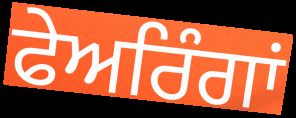
ਫੇਅਰਿੰਗਾਂ